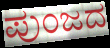
ಪುಂಜದ